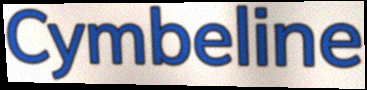
Cymbeline